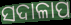
ସଦାଳାପ